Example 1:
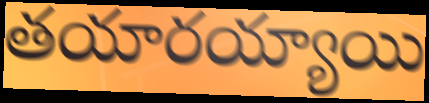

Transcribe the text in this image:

తయారయ్యాయి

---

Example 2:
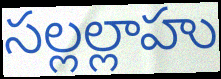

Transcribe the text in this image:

సల్లల్లాహు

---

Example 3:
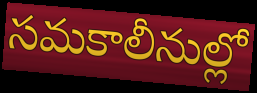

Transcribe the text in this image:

సమకాలీనుల్లో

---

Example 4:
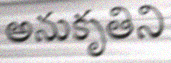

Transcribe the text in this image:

అనుకృతిని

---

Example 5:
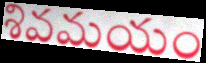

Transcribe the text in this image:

శివమయం